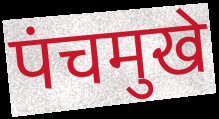
पंचमुखे